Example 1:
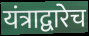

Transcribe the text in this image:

यंत्राद्वारेच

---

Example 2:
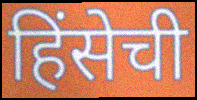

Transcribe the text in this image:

हिंसेची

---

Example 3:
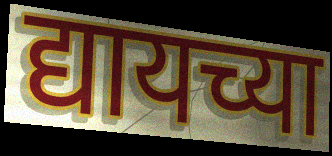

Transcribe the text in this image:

द्यायच्या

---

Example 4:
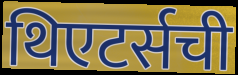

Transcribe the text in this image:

थिएटर्सची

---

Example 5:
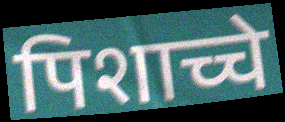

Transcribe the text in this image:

पिशाच्चे